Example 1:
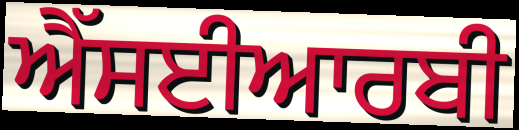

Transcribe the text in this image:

ਐੱਸਈਆਰਬੀ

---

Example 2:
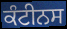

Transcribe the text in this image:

ਕੰਟੀਨਸ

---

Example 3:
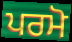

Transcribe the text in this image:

ਪਰਮੋ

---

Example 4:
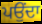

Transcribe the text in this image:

ਪਉਂਦਾ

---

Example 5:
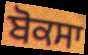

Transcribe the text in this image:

ਬੋਕਸਾ